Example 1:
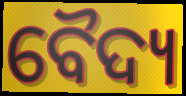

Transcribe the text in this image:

ବୈଦ୍ୟ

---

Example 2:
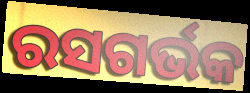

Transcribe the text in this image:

ରସଗର୍ଭକ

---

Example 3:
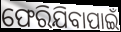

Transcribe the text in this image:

ଫେରିଯିବାପାଇଁ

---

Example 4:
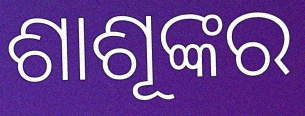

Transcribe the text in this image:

ଶାଶୂଙ୍କର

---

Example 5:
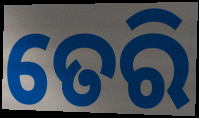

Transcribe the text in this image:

ତେରି